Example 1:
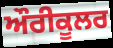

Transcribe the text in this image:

ਔਰੀਕੂਲਰ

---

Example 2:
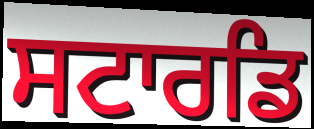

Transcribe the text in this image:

ਸਟਾਰਡਿ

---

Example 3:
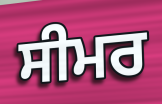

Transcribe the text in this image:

ਸੀਮਰ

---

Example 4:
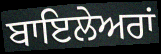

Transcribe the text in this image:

ਬਾਇਲੇਅਰਾਂ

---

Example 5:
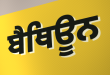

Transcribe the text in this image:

ਬੈਥਿਊਨ